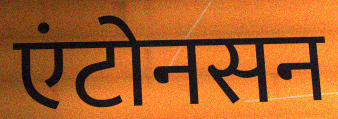
एंटोनसन